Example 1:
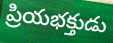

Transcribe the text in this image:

ప్రియభక్తుడు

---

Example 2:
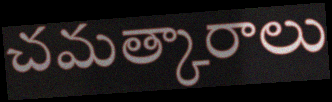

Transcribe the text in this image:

చమత్కారాలు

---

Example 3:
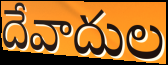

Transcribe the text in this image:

దేవాదుల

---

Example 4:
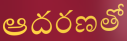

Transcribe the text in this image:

ఆదరణతో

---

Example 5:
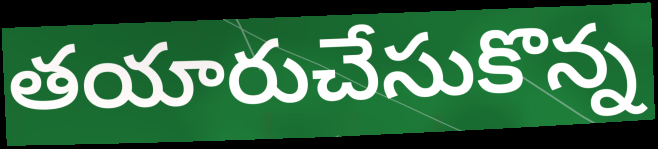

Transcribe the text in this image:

తయారుచేసుకొన్న